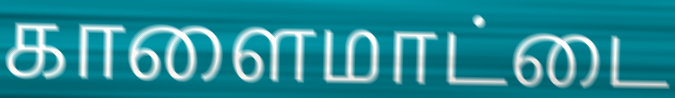
காளைமாட்டை